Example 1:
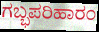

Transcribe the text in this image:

ಗಬ್ಭಪರಿಹಾರಂ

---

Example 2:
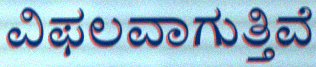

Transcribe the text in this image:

ವಿಫಲವಾಗುತ್ತಿವೆ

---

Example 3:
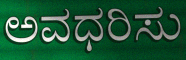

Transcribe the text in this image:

ಅವಧರಿಸು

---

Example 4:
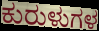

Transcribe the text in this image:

ಕುರುಳುಗಳ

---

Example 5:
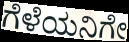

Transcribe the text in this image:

ಗೆಳೆಯನಿಗೇ